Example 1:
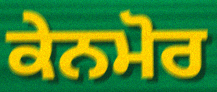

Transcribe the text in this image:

ਕੇਨਮੋਰ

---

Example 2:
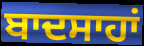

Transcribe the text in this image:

ਬਾਦਸਾਹਾਂ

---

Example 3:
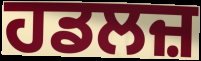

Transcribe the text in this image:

ਹਡਲਜ਼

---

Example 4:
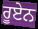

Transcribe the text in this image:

ਰੂਏਨ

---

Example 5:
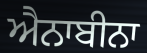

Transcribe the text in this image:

ਐਨਾਬੀਨਾ